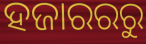
ହଜାରରରୁ